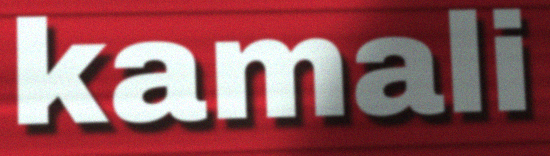
kamali